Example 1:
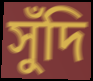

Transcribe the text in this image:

সুঁদি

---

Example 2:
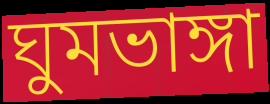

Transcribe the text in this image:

ঘুমভাঙ্গা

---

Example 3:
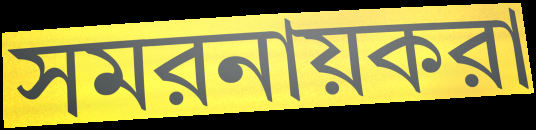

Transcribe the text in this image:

সমরনায়করা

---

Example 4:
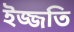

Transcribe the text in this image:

ইজ্জতি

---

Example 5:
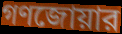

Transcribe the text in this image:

গণজোয়ার